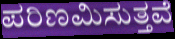
ಪರಿಣಮಿಸುತ್ತವೆ